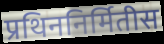
प्रथिननिर्मितीस